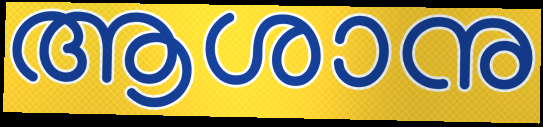
ആശാനു